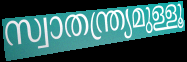
സ്വാതന്ത്ര്യമുള്ളൂ